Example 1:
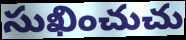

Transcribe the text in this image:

సుఖించుచు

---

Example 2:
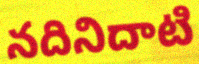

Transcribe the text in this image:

నదినిదాటి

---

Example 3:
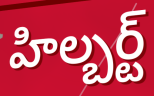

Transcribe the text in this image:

హిల్బర్ట్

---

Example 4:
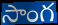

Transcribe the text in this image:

సాంగ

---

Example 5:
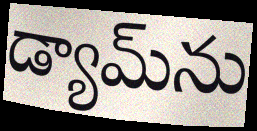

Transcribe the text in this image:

డ్యామ్‌ను